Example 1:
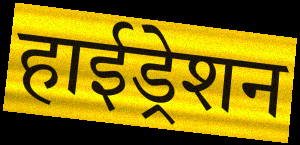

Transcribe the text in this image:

हाईड्रेशन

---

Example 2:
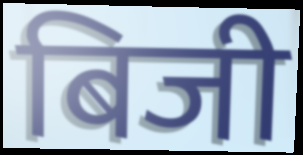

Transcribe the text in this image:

बिजी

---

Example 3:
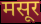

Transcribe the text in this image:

मसूर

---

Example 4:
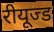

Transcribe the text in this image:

रीयूज्ड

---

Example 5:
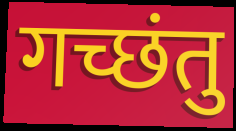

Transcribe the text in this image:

गच्छंतु